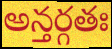
అన్తర్గతః